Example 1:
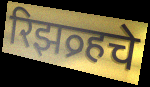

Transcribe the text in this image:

रिझव्र्हचे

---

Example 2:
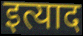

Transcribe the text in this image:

इत्याद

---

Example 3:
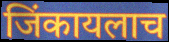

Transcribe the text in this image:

जिंकायलाच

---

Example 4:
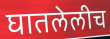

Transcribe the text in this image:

घातलेलीच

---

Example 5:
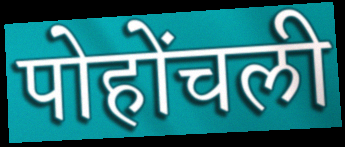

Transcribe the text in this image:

पोहोंचली